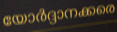
യോർദ്ദാനക്കരെ